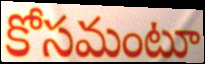
కోసమంటూ